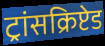
ट्रांसक्रिप्टेड